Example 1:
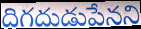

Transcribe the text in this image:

దిగదుడుపేనని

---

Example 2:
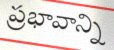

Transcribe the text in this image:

ప్రభావాన్ని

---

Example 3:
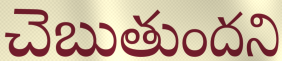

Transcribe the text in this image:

చెబుతుందని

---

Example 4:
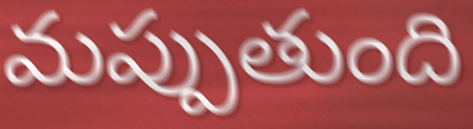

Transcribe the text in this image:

మప్పుతుంది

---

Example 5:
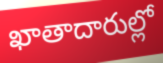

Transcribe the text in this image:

ఖాతాదారుల్లో